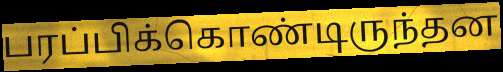
பரப்பிக்கொண்டிருந்தன